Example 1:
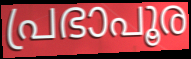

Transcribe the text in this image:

പ്രഭാപൂര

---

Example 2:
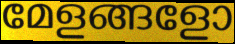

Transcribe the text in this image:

മേളങ്ങളോ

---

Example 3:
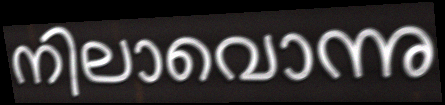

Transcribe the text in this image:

നിലാവൊന്നു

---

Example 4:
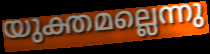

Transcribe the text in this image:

യുക്തമല്ലെന്നു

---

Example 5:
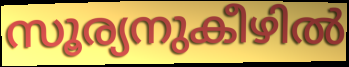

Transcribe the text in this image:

സൂര്യനുകീഴിൽ